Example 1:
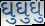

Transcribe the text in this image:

ઘુઘુઘુ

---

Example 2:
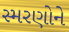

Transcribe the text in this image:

સ્મરણોને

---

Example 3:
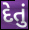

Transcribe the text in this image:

દેતું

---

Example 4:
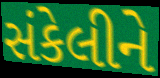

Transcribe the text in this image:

સંકેલીને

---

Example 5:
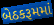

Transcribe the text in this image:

બેઠકરૂમમાં